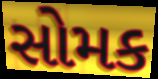
સોમક